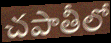
చపాతీలో